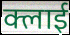
क्लाई